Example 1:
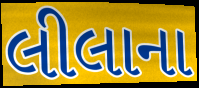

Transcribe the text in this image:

લીલાના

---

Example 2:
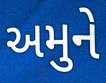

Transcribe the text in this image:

અમુને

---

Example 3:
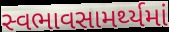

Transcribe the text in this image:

સ્વભાવસામર્થ્યમાં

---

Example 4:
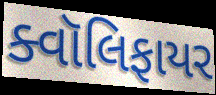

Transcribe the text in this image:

ક્વૉલિફાયર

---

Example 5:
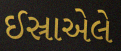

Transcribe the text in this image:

ઈસ્રાએલે